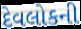
દેવલોકની